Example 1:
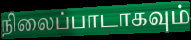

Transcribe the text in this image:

நிலைப்பாடாகவும்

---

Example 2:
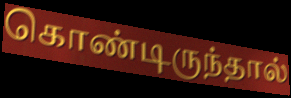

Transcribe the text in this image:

கொண்டிருந்தால்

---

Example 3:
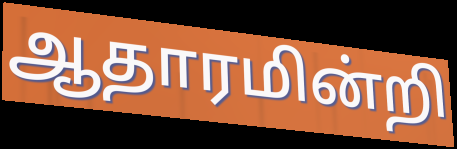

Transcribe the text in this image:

ஆதாரமின்றி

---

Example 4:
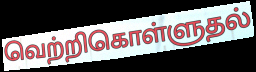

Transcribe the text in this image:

வெற்றிகொள்ளுதல்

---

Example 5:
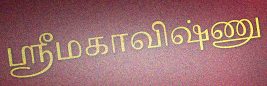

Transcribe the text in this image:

ஸ்ரீமகாவிஷ்ணு